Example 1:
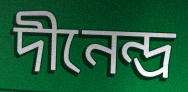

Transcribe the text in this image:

দীনেন্দ্র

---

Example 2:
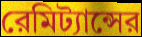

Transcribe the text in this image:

রেমিট্যান্সের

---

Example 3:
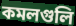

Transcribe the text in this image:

কমলগুলি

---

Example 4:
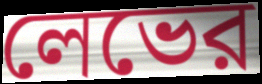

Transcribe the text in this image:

লেভের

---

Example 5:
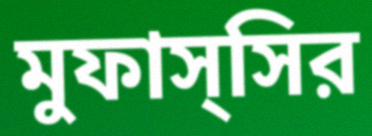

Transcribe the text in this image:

মুফাস্সির